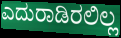
ಎದುರಾಡಿರಲಿಲ್ಲ